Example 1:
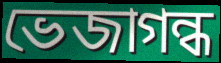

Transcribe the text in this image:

ভেজাগন্ধ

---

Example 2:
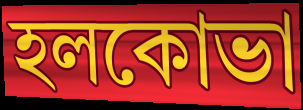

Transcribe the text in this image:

হলকোভা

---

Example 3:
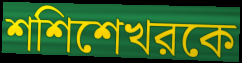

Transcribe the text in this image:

শশিশেখরকে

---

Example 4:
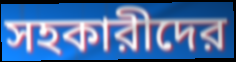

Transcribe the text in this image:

সহকারীদের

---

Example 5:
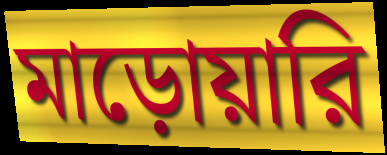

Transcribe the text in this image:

মাড়োয়ারি